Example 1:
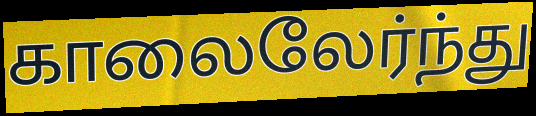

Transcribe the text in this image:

காலைலேர்ந்து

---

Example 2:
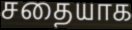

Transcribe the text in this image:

சதையாக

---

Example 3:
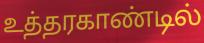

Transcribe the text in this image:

உத்தரகாண்டில்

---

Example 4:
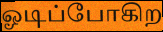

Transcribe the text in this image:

ஓடிப்போகிற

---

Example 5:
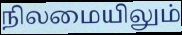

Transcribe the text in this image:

நிலமையிலும்